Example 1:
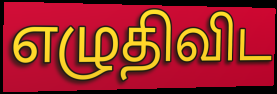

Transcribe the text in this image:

எழுதிவிட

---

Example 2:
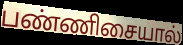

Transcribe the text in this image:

பண்ணிசையால்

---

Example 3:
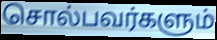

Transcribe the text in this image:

சொல்பவர்களும்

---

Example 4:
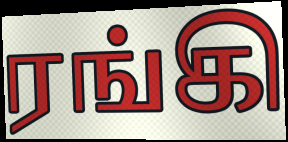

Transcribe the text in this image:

ரங்கி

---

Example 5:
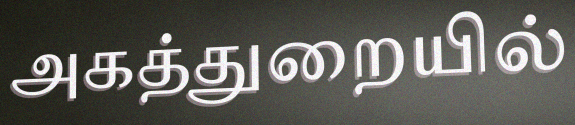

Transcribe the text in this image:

அகத்துறையில்